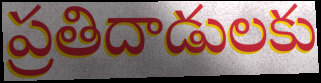
ప్రతిదాడులకు